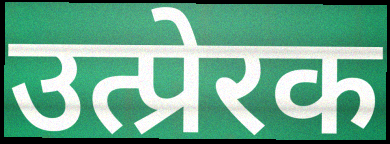
उत्प्रेरक